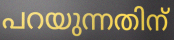
പറയുന്നതിന്